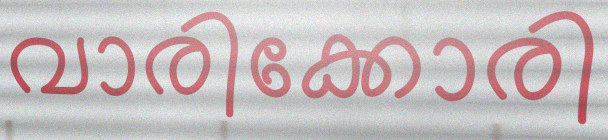
വാരിക്കോരി